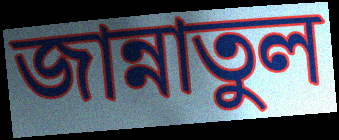
জান্নাতুল